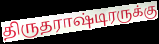
திருதராஷ்டிரருக்கு